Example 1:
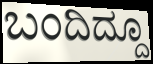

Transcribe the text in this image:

ಬಂದಿದ್ದೂ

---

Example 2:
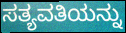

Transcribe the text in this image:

ಸತ್ಯವತಿಯನ್ನು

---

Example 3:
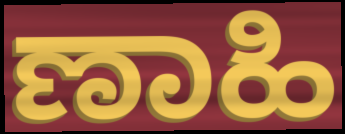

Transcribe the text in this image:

ಣಾಹಿ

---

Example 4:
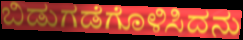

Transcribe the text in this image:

ಬಿಡುಗಡೆಗೊಳಿಸಿದನು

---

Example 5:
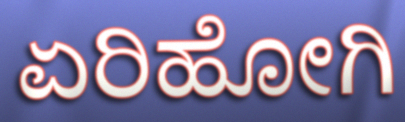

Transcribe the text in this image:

ಏರಿಹೋಗಿ